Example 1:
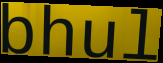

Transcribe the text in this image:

bhul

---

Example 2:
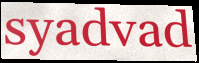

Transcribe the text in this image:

syadvad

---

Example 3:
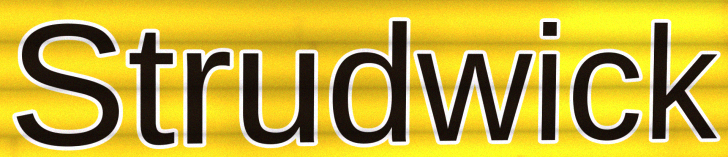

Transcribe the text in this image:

Strudwick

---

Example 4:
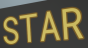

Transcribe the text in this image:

STAR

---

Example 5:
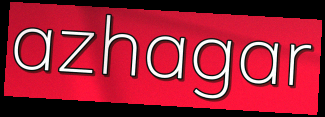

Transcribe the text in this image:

azhagar